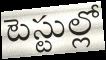
టెస్టుల్లో